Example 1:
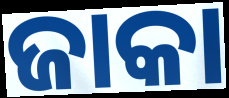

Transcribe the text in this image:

ଜାକା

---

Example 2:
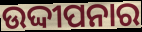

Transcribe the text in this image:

ଉଦ୍ଦୀପନାର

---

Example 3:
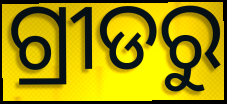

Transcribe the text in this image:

ଗ୍ରୀଡରୁ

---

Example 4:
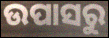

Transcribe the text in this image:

ଉପାସରୁ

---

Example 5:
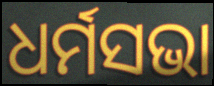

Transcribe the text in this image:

ଧର୍ମସଭା